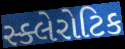
સ્ક્લેરોટિક